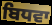
ਬਿਧਵਾ